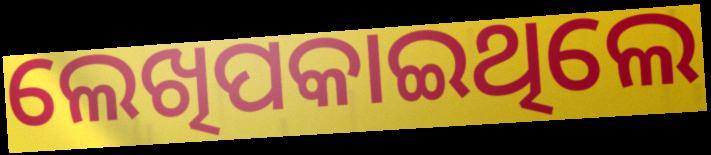
ଲେଖିପକାଇଥିଲେ